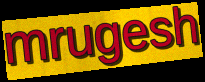
mrugesh